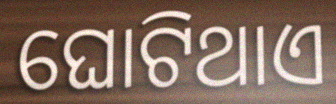
ଘୋଟିଥାଏ